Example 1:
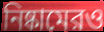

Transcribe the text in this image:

নিষ্কামেরও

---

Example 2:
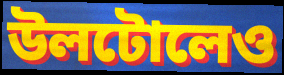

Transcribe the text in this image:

উলটোলেও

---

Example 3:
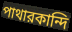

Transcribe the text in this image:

পাথারকান্দি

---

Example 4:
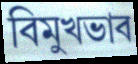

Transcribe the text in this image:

বিমুখভাব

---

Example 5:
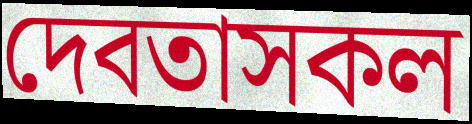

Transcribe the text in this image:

দেবতাসকল